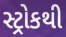
સ્ટ્રોકથી